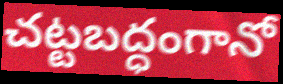
చట్టబద్ధంగానో